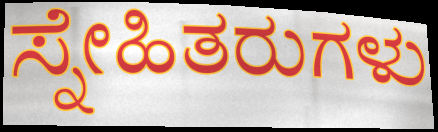
ಸ್ನೇಹಿತರುಗಳು